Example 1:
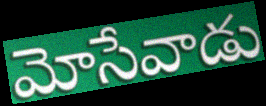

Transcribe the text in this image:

మోసేవాడు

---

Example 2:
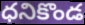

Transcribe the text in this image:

ధనికొండ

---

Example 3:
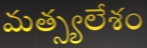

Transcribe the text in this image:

మత్స్యలేశం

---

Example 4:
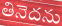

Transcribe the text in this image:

తినెదను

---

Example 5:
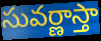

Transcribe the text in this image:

సువర్ణాస్తా